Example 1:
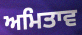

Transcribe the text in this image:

ਅਮਿਤਾਵ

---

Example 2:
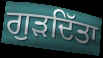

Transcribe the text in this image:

ਗੁੜਦਿੱਤਾ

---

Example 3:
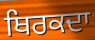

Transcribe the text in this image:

ਥਿਰਕਦਾ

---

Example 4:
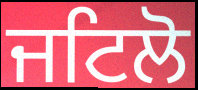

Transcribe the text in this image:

ਜਟਿਲੋ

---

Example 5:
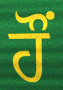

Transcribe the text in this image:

ਹੌਂ